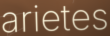
arietes